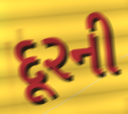
દૂરની